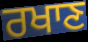
ਰਖਾਣ